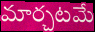
మార్చటమే